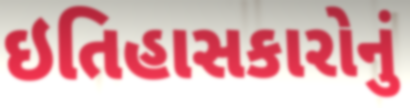
ઇતિહાસકારોનું